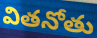
వితనోతు